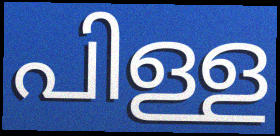
പിള്ള